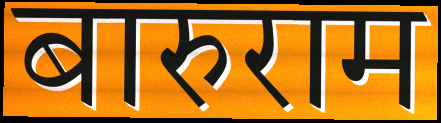
बारुराम